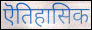
ऎतिहासिक